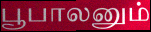
பூபாலனும்